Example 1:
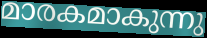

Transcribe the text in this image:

മാരകമാകുന്നു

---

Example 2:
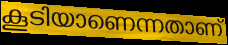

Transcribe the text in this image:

കൂടിയാണെന്നതാണ്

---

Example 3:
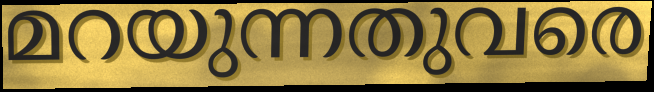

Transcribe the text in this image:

മറയുന്നതുവരെ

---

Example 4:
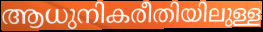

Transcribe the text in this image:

ആധുനികരീതിയിലുള്ള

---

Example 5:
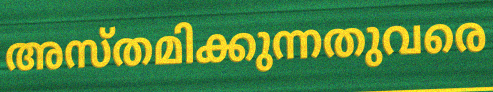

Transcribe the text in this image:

അസ്തമിക്കുന്നതുവരെ